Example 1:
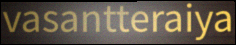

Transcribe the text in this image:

vasantteraiya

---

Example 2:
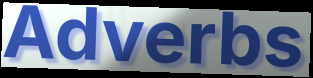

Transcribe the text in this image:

Adverbs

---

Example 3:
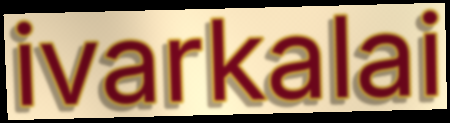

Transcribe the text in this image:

ivarkalai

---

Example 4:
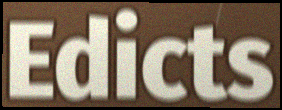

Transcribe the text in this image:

Edicts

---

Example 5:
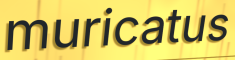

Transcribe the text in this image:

muricatus